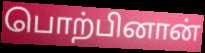
பொற்பினான்